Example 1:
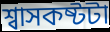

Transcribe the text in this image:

শ্বাসকষ্টটা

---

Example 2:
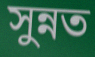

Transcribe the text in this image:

সুন্নত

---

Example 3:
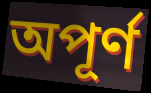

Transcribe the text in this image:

অপূর্ণ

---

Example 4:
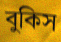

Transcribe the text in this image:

বুকিস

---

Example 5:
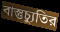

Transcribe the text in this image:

বাস্তুচ্যুতির